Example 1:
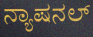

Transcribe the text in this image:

ನ್ಯಾಷನಲ್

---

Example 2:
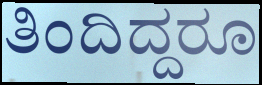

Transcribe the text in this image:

ತಿಂದಿದ್ದರೂ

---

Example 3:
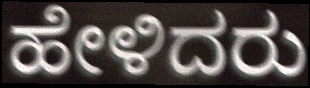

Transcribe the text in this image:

ಹೇಳಿದರು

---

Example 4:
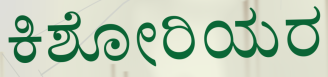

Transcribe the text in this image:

ಕಿಶೋರಿಯರ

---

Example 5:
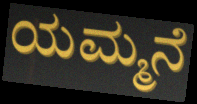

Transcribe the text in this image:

ಯಮ್ಮನೆ